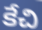
కేచి